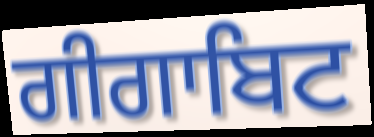
ਗੀਗਾਬਿਟ